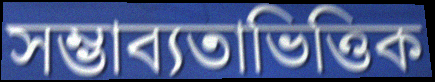
সম্ভাব্যতাভিত্তিক